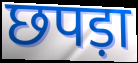
छपड़ा